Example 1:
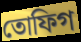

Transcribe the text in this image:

তোফিগ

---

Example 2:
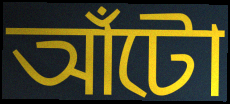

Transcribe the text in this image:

আঁটো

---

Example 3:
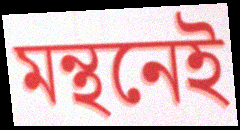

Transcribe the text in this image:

মন্থনেই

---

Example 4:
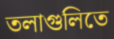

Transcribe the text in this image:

তলাগুলিতে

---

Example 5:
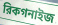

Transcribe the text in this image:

রিকগনাইজ